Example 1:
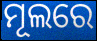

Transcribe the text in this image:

ମୂଲରେ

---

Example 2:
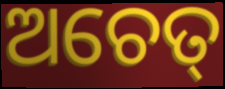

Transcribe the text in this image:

ଅଚେତ୍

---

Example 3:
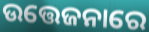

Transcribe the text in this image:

ଉତ୍ତେଜନାରେ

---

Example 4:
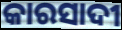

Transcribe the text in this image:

କାରସାଦୀ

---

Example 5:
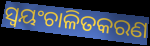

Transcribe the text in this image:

ସ୍ୱୟଂଚାଳିତକରଣ